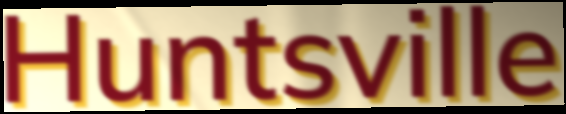
Huntsville